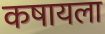
कषायला